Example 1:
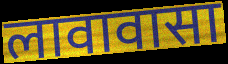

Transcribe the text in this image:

लावावासा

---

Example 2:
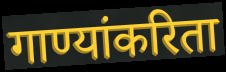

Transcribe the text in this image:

गाण्यांकरिता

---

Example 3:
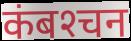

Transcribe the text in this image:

कंबश्चन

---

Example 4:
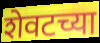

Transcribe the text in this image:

शेवटच्या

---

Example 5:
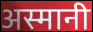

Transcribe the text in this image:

अस्मानी